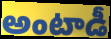
అంటాడీ